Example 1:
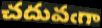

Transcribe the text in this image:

చదువఁగా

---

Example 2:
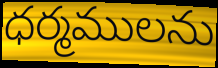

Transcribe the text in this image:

ధర్మములను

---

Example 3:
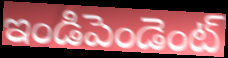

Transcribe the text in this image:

ఇండిపెండెంట్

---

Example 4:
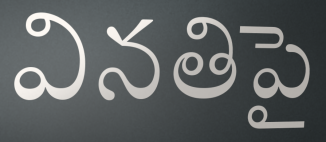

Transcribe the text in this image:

వినతిపై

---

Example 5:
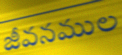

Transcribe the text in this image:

జీవనముల